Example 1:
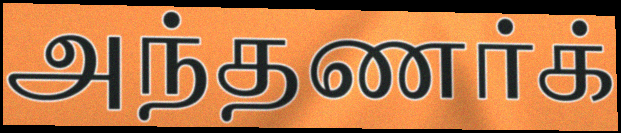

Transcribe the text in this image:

அந்தணர்க்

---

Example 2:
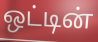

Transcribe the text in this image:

ஒட்டின்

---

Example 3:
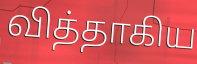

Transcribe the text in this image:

வித்தாகிய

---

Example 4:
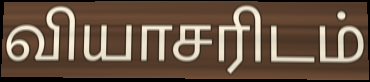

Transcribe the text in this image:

வியாசரிடம்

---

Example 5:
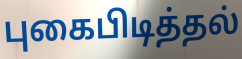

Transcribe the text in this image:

புகைபிடித்தல்